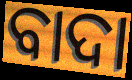
ବାଦା